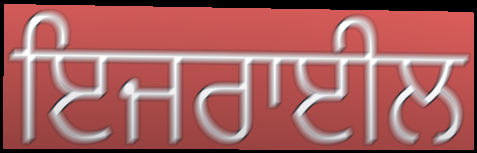
ਇਜਰਾਈਲ